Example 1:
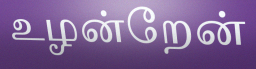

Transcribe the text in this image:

உழன்றேன்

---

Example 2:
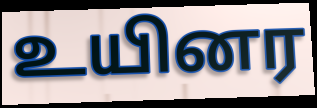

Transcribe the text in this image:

உயினர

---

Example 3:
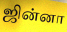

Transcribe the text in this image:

ஜின்னா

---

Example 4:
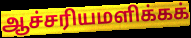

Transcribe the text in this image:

ஆச்சரியமளிக்கக்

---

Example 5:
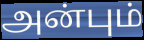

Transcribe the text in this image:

அன்பும்